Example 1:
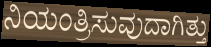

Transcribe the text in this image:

ನಿಯಂತ್ರಿಸುವುದಾಗಿತ್ತು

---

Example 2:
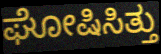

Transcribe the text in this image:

ಘೋಷಿಸಿತ್ತು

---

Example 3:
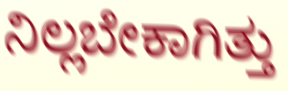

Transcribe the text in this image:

ನಿಲ್ಲಬೇಕಾಗಿತ್ತು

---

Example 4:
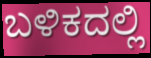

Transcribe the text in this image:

ಬಳಿಕದಲ್ಲಿ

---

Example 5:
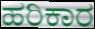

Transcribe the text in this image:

ಹರಿಕಾರ